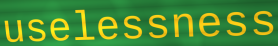
uselessness